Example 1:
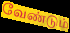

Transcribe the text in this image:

வேண்டும்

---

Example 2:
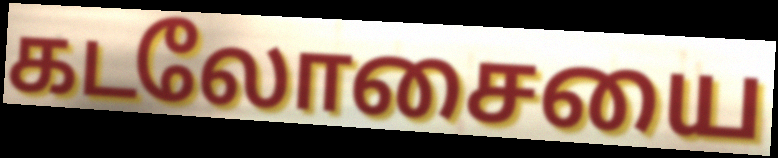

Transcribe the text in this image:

கடலோசையை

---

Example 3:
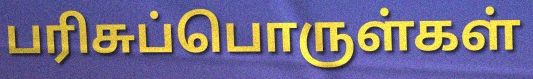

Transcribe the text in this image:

பரிசுப்பொருள்கள்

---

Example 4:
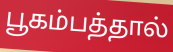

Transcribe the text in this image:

பூகம்பத்தால்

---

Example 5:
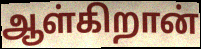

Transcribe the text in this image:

ஆள்கிறான்